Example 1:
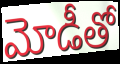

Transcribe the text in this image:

మోడీతో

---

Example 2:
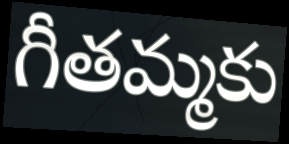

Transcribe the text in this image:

గీతమ్మకు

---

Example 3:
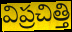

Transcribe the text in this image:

విప్రచిత్తి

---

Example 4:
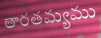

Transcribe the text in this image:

తారతమ్యము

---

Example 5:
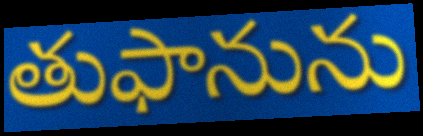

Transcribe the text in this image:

తుఫానును